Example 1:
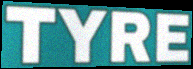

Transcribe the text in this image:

TYRE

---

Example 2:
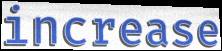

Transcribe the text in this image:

increase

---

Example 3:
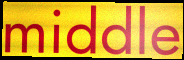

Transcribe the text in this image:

middle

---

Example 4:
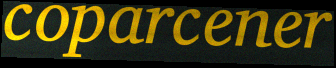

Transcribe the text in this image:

coparcener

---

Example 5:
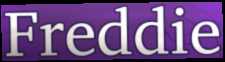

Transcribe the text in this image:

Freddie